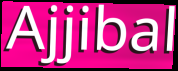
Ajjibal